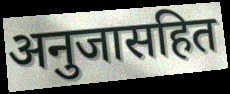
अनुजासहित